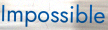
Impossible